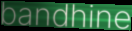
bandhine